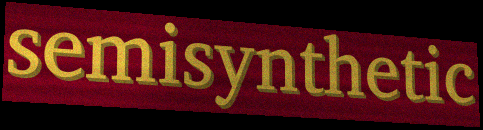
semisynthetic